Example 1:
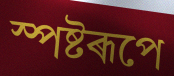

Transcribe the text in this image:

স্পষ্টৰূপে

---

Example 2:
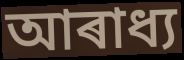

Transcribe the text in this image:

আৰাধ্য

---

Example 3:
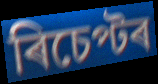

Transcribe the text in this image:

ৰিচেপ্টৰ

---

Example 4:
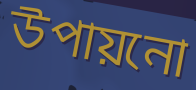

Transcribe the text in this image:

উপায়নো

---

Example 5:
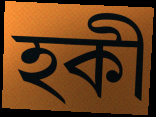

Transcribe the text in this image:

হকী